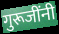
गुरूजींनी